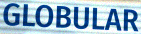
GLOBULAR